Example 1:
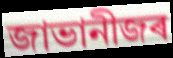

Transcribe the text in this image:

জাভানীজৰ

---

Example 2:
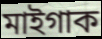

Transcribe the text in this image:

মাইগাক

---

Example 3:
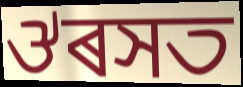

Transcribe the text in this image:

ঔৰসত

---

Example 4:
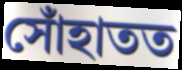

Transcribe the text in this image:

সোঁহাতত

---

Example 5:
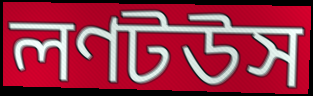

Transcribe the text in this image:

লণটউস